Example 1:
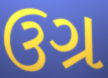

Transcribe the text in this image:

ઉગ્ર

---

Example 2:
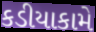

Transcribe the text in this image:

કડીયાકામે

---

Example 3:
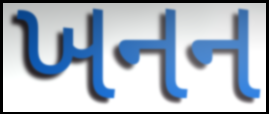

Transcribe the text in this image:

ખનન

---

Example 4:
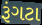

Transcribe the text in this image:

રૂંગટા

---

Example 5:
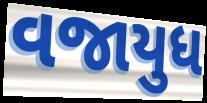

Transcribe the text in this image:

વજાયુધ